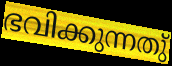
ഭവിക്കുന്നതു്